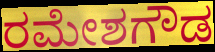
ರಮೇಶಗೌಡ